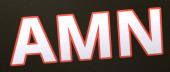
AMN